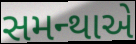
સમન્થાએ